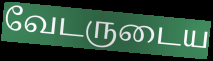
வேடருடைய